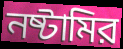
নষ্টামির